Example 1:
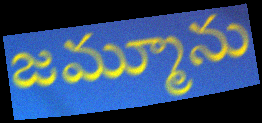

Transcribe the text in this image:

జమ్మూను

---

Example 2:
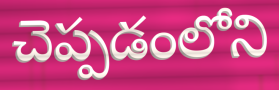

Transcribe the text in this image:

చెప్పడంలోని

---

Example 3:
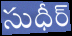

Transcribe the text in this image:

సుధీర్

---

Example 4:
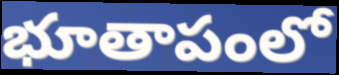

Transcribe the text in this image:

భూతాపంలో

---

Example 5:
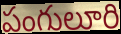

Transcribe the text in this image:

పంగులూరి